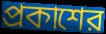
প্রকাশের